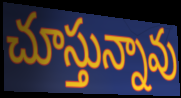
చూస్తున్నావు